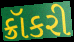
ક્રૉકરી